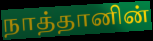
நாத்தானின்